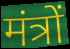
मंत्रों